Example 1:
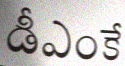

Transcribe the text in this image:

డీఎంకే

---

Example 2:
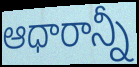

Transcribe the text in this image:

ఆధారాన్నీ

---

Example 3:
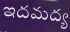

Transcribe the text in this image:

ఇదమద్య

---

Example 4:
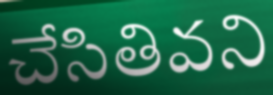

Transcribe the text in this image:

చేసితివని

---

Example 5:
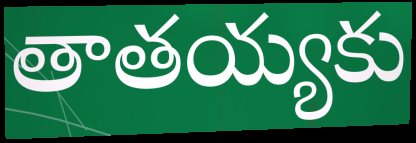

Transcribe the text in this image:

తాతయ్యకు